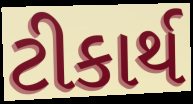
ટીકાર્થ